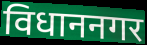
विधाननगर